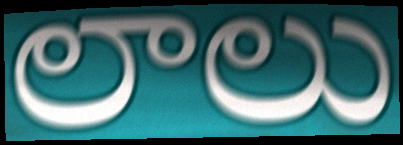
లాలు